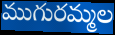
ముగురమ్మల